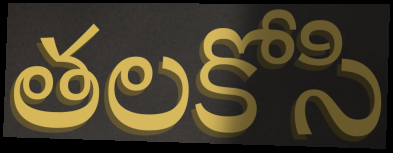
తలకోసి